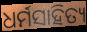
ଧର୍ମସାହିତ୍ୟ